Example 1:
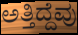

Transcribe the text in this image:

ಅತ್ತಿದ್ದೆವು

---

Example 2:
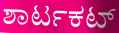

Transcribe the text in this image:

ಶಾರ್ಟಕಟ್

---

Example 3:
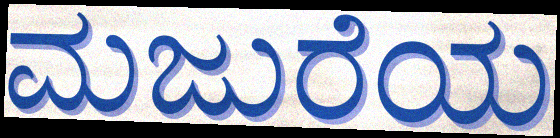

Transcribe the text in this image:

ಮಜುರೆಯ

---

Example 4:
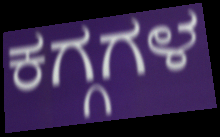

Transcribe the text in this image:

ಕಗ್ಗಗಳ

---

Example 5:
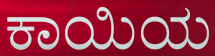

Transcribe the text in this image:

ಕಾಯಿಯ